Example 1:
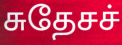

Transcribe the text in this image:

சுதேசச்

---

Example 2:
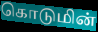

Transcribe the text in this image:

கொடுமின்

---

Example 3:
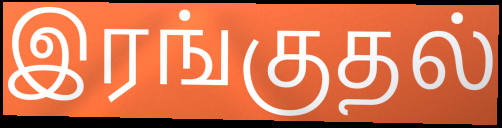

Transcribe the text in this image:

இரங்குதல்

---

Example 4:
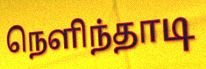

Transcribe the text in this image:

நெளிந்தாடி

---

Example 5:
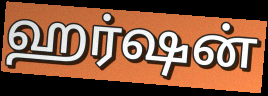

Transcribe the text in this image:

ஹர்ஷன்